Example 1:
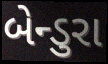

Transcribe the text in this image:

બેન્ડુરા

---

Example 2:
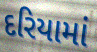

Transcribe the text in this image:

દરિયામાં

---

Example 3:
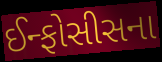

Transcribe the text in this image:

ઈન્ફોસીસના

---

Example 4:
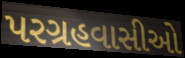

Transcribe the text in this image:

પરગ્રહવાસીઓ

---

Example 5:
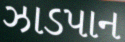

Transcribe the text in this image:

ઝાડપાન